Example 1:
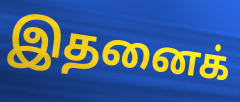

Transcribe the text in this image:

இதனைக்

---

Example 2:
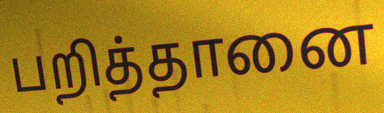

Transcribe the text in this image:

பறித்தானை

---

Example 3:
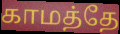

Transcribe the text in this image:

காமத்தே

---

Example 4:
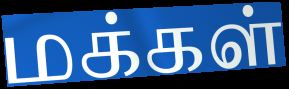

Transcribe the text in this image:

மக்கள்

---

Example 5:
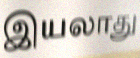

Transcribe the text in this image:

இயலாது